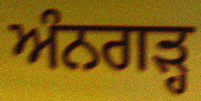
ਅੰਨਗੜ੍ਹ